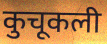
कुचूकली